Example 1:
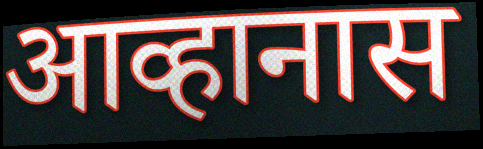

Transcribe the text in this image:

आव्हानास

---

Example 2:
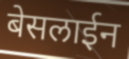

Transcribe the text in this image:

बेसलाईन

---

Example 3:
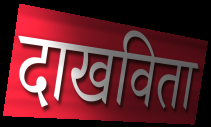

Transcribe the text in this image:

दाखविता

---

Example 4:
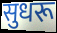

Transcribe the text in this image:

सुधरू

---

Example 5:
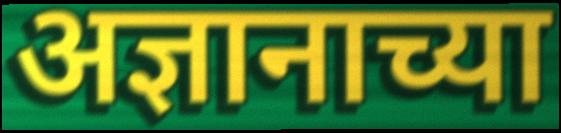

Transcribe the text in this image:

अज्ञानाच्या